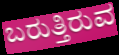
ಬರುತ್ತಿರುವ